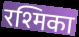
रश्मिका